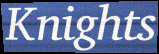
Knights